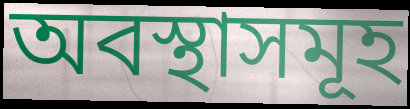
অবস্থাসমূহ